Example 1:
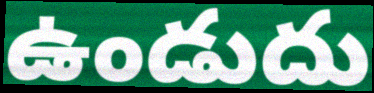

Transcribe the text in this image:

ఉండుదు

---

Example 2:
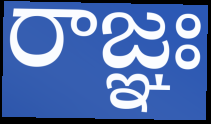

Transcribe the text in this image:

రాజ్ఞః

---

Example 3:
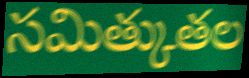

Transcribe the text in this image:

సమిత్కుతల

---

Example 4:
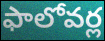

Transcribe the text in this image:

ఫాలోవర్ల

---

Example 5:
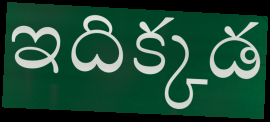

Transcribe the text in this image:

ఇదిక్కడ